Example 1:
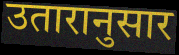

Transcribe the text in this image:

उतारानुसार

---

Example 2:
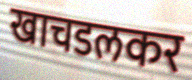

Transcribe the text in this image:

खाचडलकर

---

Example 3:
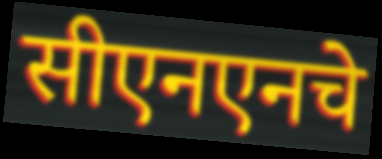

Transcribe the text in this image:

सीएनएनचे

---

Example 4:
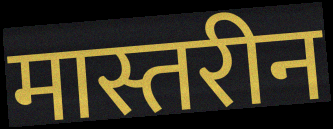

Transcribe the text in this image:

मास्तरीन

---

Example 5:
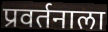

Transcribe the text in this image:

प्रवर्तनाला